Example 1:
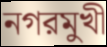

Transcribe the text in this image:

নগরমুখী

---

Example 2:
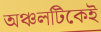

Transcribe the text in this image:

অঞ্চলটিকেই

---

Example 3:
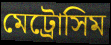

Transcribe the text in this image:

মেট্রোসিম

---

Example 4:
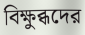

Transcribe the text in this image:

বিক্ষুব্ধদের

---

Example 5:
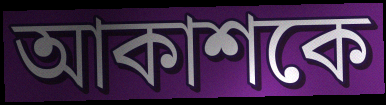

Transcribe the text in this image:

আকাশকে